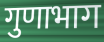
गुणाभाग